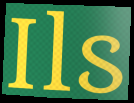
Ils